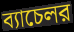
ব্যাচেলর